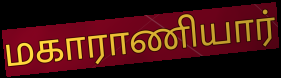
மகாராணியார்